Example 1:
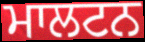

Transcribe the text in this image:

ਮਾਲਟਨ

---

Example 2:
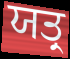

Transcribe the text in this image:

ਯਤ੍ਰ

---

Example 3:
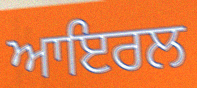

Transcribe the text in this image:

ਆਇਰਲ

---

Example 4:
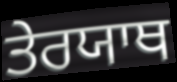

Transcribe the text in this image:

ਤੇਰਯਾਥ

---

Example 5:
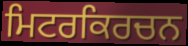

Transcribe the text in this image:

ਮਿਟਰਕਿਰਚਨ